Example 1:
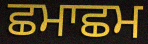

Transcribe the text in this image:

ਛਮਾਛਮ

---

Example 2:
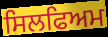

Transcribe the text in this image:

ਸਿਲਫਿਅਮ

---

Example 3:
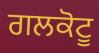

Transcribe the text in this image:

ਗਲਕੋਟੂ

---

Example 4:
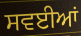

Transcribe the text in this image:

ਸਵਈਆਂ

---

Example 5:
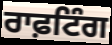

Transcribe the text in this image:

ਰਾਫ਼ਟਿੰਗ